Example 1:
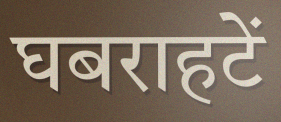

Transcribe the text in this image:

घबराहटें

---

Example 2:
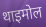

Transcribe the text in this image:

थाइमोल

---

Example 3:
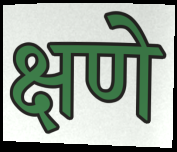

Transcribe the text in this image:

क्षणे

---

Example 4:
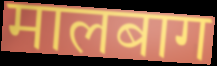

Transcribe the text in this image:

मालबाग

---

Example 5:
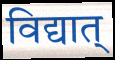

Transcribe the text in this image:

विद्यात्